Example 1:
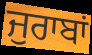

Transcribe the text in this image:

ਜੁਰਾਬਾਂ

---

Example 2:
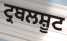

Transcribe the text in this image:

ਟ੍ਰਬਲਸ਼ੂਟ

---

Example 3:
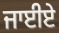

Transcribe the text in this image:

ਜਾਈਏ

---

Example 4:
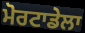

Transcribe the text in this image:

ਮੋਰਟਾਡੇਲਾ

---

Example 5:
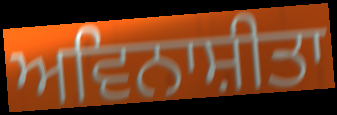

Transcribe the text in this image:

ਅਵਿਨਾਸ਼ੀਤਾ